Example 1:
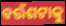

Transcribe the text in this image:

ବଉଁଶଟାକୁ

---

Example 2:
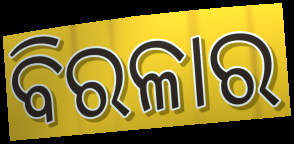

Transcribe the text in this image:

ବିରଳାର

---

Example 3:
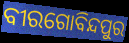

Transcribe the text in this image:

ବୀରଗୋବିନ୍ଦପୁର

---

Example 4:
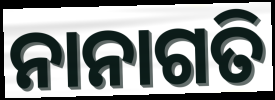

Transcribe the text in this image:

ନାନାଗତି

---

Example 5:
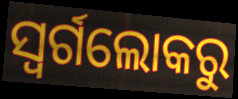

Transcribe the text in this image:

ସ୍ଵର୍ଗଲୋକରୁ